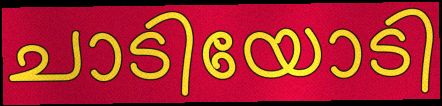
ചാടിയോടി